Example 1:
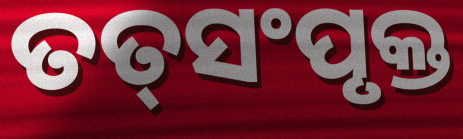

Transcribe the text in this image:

ତତ୍‌ସଂପୃକ୍ତ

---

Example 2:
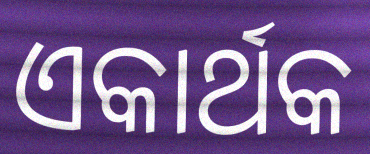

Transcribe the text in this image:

ଏକାର୍ଥକ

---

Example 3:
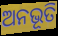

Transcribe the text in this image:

ଅନଭୂତି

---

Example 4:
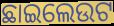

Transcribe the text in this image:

ଛାଇଲେଉଟ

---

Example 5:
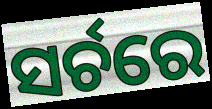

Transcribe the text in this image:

ସର୍ଚରେ